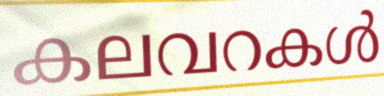
കലവറകൾ